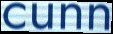
cunn